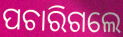
ପଚାରିଗଲେ